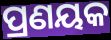
ପ୍ରଣୟକ